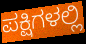
ಪಕ್ಷಿಗಳಲ್ಲಿ